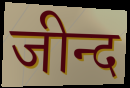
जीन्द